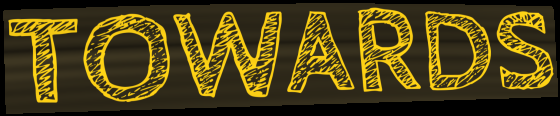
TOWARDS